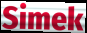
Simek